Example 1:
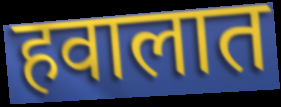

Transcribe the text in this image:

हवालात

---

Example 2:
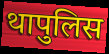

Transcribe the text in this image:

थापुलिस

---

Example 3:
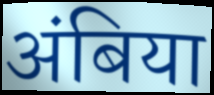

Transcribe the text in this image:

अंबिया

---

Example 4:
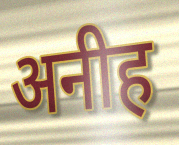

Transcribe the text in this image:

अनीह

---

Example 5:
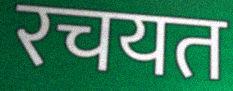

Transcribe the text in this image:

रचयत